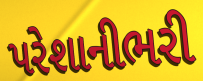
પરેશાનીભરી